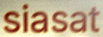
siasat